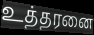
உத்தரனை